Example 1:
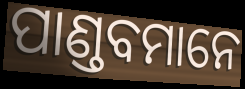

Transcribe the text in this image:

ପାଣ୍ଡବମାନେ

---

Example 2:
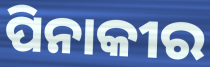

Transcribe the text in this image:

ପିନାକୀର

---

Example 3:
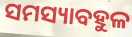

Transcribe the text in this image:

ସମସ୍ୟାବହୁଳ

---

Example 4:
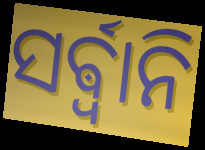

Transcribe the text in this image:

ସର୍ଵ୍ଵାନି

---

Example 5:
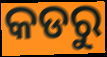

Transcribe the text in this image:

କଡରୁ